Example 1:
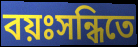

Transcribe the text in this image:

বয়ঃসন্ধিতে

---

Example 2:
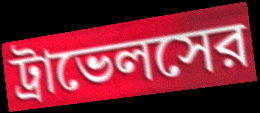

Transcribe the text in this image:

ট্রাভেলসের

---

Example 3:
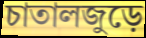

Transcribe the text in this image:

চাতালজুড়ে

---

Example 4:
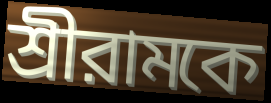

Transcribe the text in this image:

শ্রীরামকে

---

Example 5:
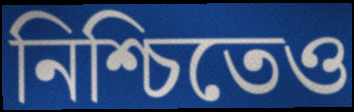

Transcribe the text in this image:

নিশ্চিতেও